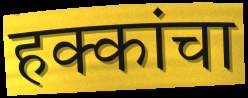
हक्कांचा